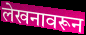
लेखनावरून